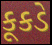
કૂકડે